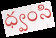
ధ్వంసి